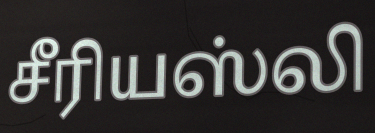
சீரியஸ்லி